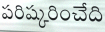
పరిష్కరించేది